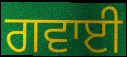
ਗਵਾਈ